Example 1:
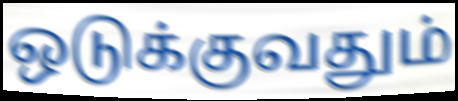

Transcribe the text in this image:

ஒடுக்குவதும்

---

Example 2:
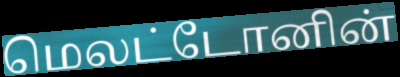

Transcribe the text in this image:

மெலட்டோனின்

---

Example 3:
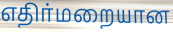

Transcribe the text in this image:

எதிர்மறையான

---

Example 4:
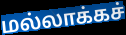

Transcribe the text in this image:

மல்லாக்கச்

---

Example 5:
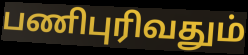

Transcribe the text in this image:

பணிபுரிவதும்